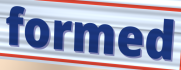
formed